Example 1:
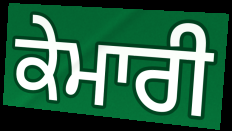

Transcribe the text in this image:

ਕੇਮਾਰੀ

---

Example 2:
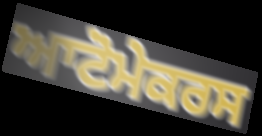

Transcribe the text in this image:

ਆਟੋਮੇਕਰਸ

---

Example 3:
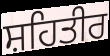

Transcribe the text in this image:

ਸ਼ਹਿਤੀਰ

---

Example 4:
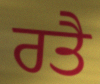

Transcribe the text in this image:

ਰਤੈ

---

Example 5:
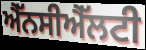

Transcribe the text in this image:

ਐੱਨਸੀਐੱਲਟੀ